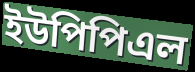
ইউপিপিএল